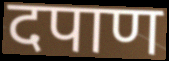
दपाण